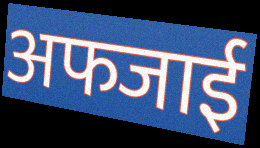
अफजाई